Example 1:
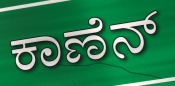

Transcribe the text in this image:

ಕಾಣೆನ್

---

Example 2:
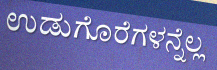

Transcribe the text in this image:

ಉಡುಗೊರೆಗಳನ್ನೆಲ್ಲ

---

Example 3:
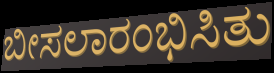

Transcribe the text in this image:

ಬೀಸಲಾರಂಭಿಸಿತು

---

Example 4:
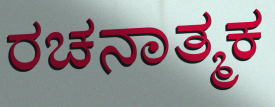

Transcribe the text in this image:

ರಚನಾತ್ಮಕ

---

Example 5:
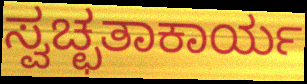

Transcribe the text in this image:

ಸ್ವಚ್ಛತಾಕಾರ್ಯ